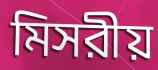
মিসরীয়